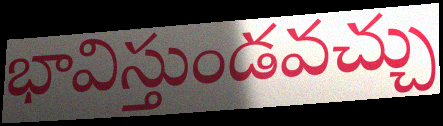
భావిస్తుండవచ్చు